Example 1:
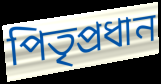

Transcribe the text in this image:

পিতৃপ্রধান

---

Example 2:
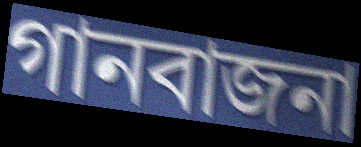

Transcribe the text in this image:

গানবাজনা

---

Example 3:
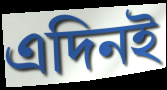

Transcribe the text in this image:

এদিনই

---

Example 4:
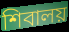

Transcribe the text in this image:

শিবালয়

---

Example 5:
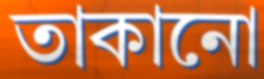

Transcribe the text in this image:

তাকানো